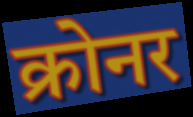
क्रोनर